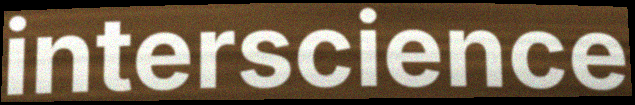
interscience